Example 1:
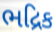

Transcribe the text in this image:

ભદ્રિક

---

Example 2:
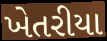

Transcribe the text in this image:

ખેતરીયા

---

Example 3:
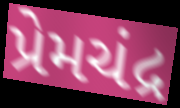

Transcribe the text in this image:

પ્રેમચંદ્ર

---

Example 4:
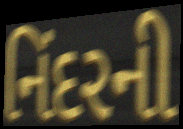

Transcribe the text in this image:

નિંદરની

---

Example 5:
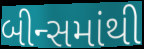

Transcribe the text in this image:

બીન્સમાંથી